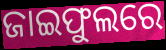
ଜାଇଫୁଲରେ